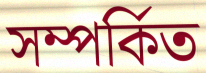
সম্পৰ্কিত